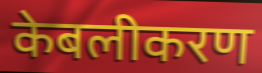
केबलीकरण